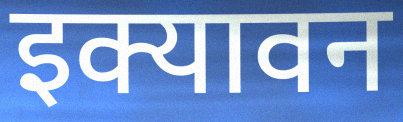
इक्यावन